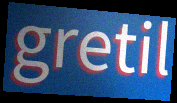
gretil